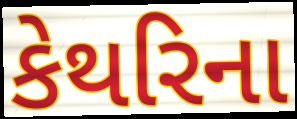
કેથરિના